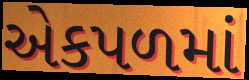
એકપળમાં